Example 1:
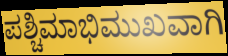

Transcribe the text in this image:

ಪಶ್ಚಿಮಾಭಿಮುಖವಾಗಿ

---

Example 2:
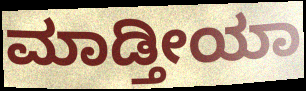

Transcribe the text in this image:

ಮಾಡ್ತೀಯಾ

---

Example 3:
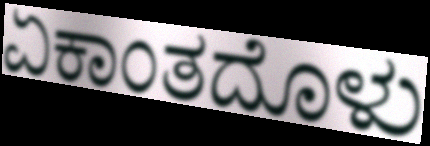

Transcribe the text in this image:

ಏಕಾಂತದೊಳು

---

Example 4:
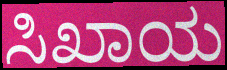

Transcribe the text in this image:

ಸಿಖಾಯ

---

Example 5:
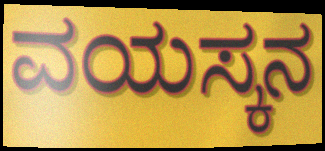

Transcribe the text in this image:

ವಯಸ್ಕನ